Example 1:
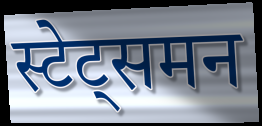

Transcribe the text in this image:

स्टेट्समन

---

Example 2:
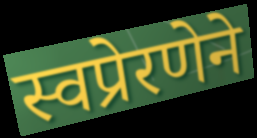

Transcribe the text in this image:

स्वप्रेरणेने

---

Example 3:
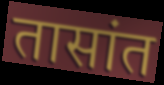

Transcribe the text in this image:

तासांत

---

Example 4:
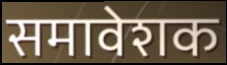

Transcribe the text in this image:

समावेशक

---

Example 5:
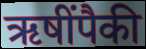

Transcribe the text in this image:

ऋषींपैकी